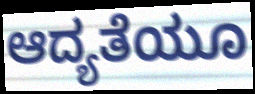
ಆದ್ಯತೆಯೂ